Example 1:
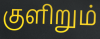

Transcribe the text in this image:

குளிறும்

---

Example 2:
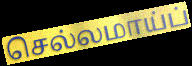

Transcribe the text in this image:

செல்லமாய்ப்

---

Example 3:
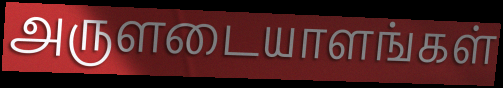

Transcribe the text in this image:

அருளடையாளங்கள்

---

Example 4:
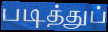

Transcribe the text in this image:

படித்துப்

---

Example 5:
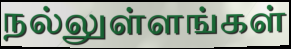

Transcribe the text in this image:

நல்லுள்ளங்கள்